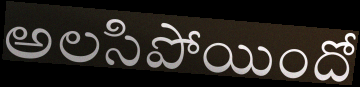
అలసిపోయిందో